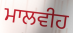
ਮਾਲਵੀਹ